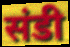
संडी